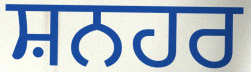
ਸ਼ਨਹਰ